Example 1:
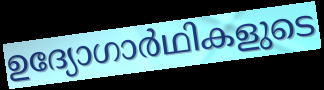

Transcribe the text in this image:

ഉദ്യോഗാർഥികളുടെ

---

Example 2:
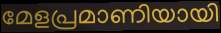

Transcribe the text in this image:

മേളപ്രമാണിയായി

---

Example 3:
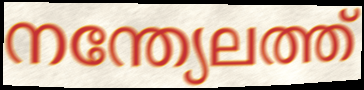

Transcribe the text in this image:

നന്ത്യേലത്ത്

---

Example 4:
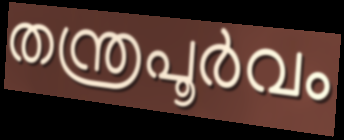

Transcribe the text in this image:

തന്ത്രപൂർവം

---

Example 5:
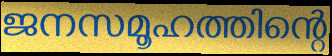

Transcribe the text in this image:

ജനസമൂഹത്തിന്റെ